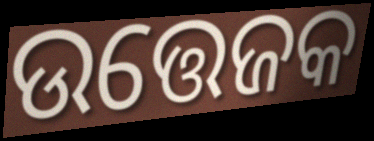
ଉତ୍ତେଜକ